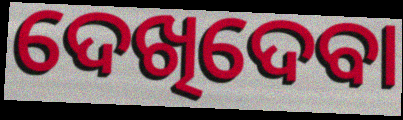
ଦେଖିଦେବା